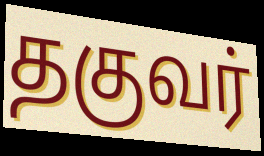
தகுவர்